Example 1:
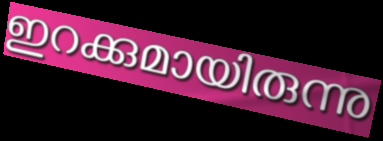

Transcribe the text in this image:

ഇറക്കുമായിരുന്നു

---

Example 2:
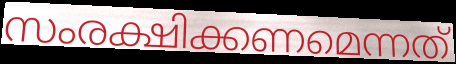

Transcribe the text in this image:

സംരക്ഷിക്കണമെന്നത്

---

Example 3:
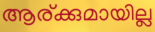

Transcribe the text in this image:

ആര്ക്കുമായില്ല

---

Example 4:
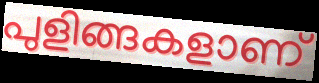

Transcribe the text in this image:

പുളിങ്ങകളാണ്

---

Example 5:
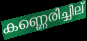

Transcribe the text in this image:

കണ്ണെരിച്ചില്